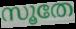
സൂതേ